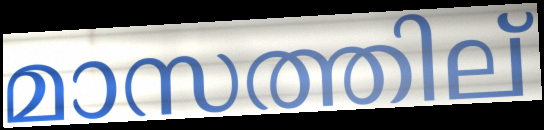
മാസത്തില്